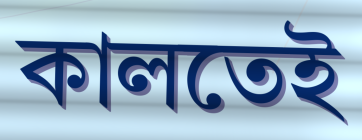
কালতেই